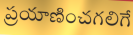
ప్రయాణించగలిగే